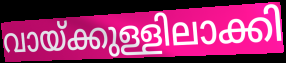
വായ്ക്കുള്ളിലാക്കി